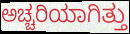
ಅಚ್ಚರಿಯಾಗಿತ್ತು